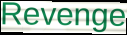
Revenge